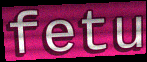
fetu